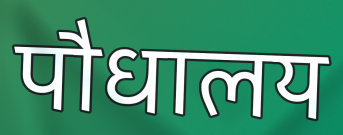
पौधालय